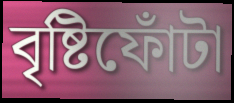
বৃষ্টিফোঁটা